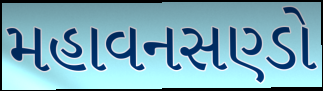
મહાવનસણ્ડો